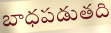
బాధపడుతది